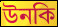
উনকি